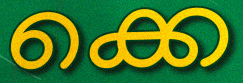
ക്കെ